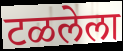
टळलेला